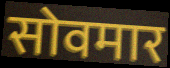
सोवमार